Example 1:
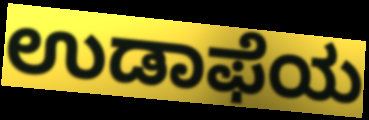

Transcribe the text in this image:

ಉಡಾಫೆಯ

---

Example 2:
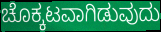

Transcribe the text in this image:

ಚೊಕ್ಕಟವಾಗಿಡುವುದು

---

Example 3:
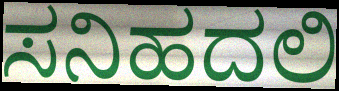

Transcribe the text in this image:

ಸನಿಹದಲಿ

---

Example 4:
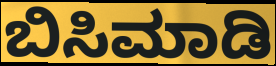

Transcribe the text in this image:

ಬಿಸಿಮಾಡಿ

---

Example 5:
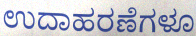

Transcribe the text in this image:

ಉದಾಹರಣೆಗಳೂ